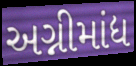
અગ્નીમાંદ્ય